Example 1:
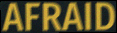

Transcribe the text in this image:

AFRAID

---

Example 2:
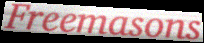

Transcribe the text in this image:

Freemasons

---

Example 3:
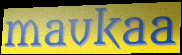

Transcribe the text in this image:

maukaa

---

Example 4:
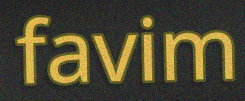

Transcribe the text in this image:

favim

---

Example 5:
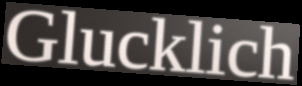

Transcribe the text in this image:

Glucklich